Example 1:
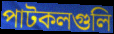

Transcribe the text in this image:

পাটকলগুলি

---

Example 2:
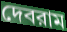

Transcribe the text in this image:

দেবরাম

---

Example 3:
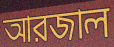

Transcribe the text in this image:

আরজাল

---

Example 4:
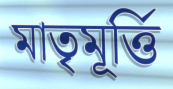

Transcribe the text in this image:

মাতৃমূর্ত্তি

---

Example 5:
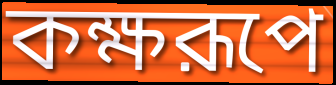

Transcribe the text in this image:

কক্ষরূপে